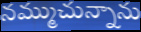
నమ్ముచున్నాను